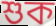
শুক